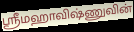
ஸ்ரீமஹாவிஷ்ணுவின்